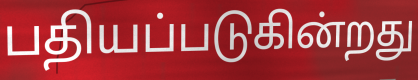
பதியப்படுகின்றது